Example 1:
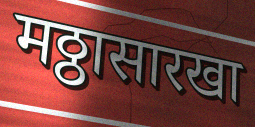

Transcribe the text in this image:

मठ्ठासारखा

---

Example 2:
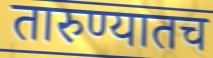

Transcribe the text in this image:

तारुण्यातच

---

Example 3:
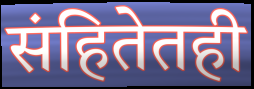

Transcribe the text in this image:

संहितेतही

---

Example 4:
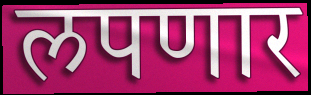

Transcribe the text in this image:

लपणार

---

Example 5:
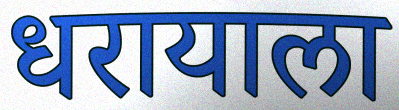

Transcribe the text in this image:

धरायाला